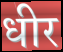
धीर